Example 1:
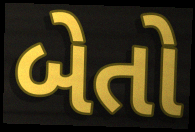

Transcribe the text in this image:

બેતો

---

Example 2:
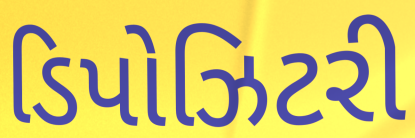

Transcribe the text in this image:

ડિપોઝિટરી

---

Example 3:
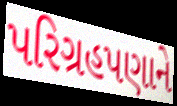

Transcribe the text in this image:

પરિગ્રહપણાને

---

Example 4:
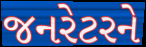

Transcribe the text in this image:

જનરેટરને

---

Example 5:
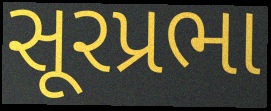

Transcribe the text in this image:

સૂરપ્રભા